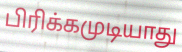
பிரிக்கமுடியாது